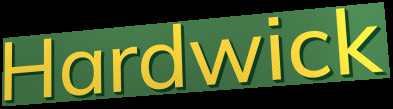
Hardwick